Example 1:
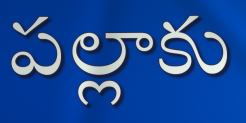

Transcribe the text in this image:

పల్లాకు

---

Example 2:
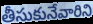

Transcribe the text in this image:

తీసుకునేవారిని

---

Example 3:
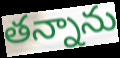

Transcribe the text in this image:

తన్నాను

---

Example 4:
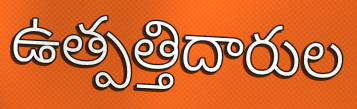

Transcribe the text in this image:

ఉత్పత్తిదారుల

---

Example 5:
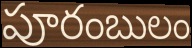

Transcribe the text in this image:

పూరంబులం